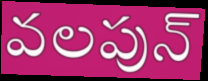
వలపున్